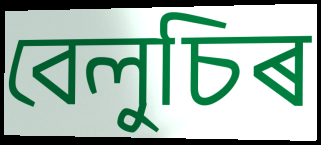
বেলুচিৰ